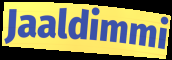
Jaaldimmi